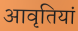
आवृतियां